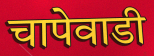
चापेवाडी